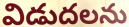
విడుదలను